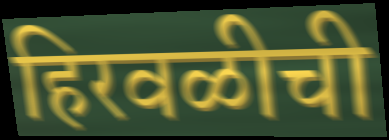
हिरवळीची